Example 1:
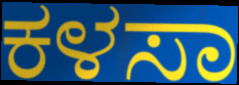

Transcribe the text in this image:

ಕಳಸಾ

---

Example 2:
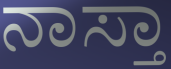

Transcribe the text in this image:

ನಾಸ್ತಾ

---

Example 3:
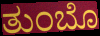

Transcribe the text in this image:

ತುಂಬೊ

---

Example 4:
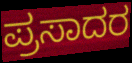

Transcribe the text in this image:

ಪ್ರಸಾದರ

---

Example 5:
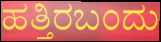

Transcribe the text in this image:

ಹತ್ತಿರಬಂದು